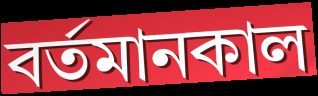
বর্তমানকাল